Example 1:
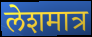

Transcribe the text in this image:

लेशमात्र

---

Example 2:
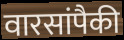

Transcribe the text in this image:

वारसांपैकी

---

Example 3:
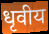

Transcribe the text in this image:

धृवीय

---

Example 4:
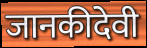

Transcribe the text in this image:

जानकीदेवी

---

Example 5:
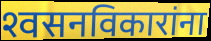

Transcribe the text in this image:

श्वसनविकारांना